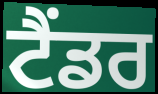
ਟੈਂਡਰ